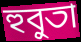
হুবুতা